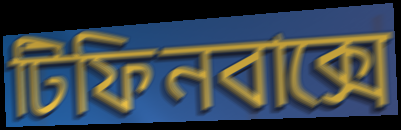
টিফিনবাক্সে